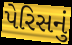
પેરિસનું